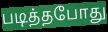
படித்தபோது